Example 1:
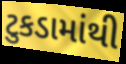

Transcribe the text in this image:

ટુકડામાંથી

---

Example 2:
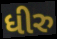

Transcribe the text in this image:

ધીરુ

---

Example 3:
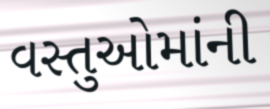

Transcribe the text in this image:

વસ્તુઓમાંની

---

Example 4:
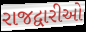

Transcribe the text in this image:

રાજદ્વારીઓ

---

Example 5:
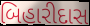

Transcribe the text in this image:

બિહારીદાસ